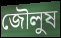
জৌলুষ